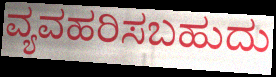
ವ್ಯವಹರಿಸಬಹುದು